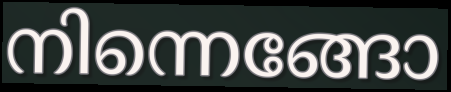
നിന്നെങ്ങോ